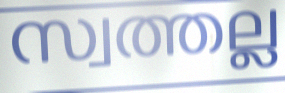
സ്വത്തല്ല